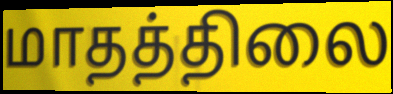
மாதத்திலை